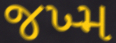
જખ્મ